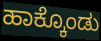
ಹಾಕ್ಕೊಂಡು